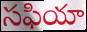
సఫియా